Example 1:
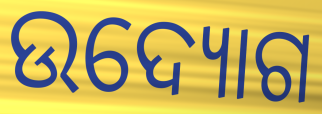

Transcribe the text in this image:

ଉଦ୍ୟୋଗ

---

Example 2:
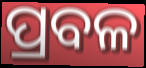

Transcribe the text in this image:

ପ୍ରବଳ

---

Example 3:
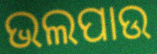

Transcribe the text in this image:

ଭଲପାଉ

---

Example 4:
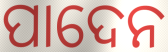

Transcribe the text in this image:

ପାଦେନ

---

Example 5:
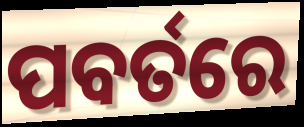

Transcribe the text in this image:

ପବର୍ତରେ